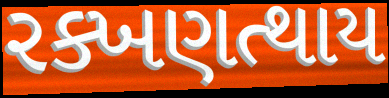
રક્ખણત્થાય